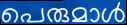
പെരുമാൾ